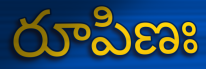
రూపిణః